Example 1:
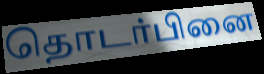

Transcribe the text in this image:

தொடர்பினை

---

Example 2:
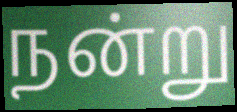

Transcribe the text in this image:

நன்று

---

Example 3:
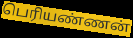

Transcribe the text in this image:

பெரியண்ணன்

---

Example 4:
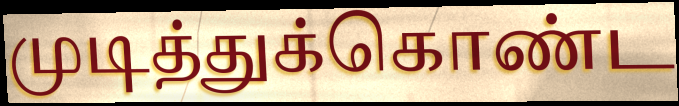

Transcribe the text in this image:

முடித்துக்கொண்ட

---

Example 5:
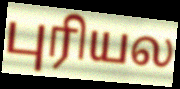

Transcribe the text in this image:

புரியல